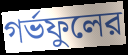
গর্ভফুলের